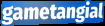
gametangial